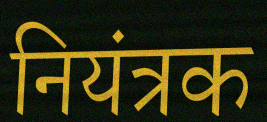
नियंत्रक